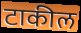
टाकील